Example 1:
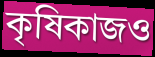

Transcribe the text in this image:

কৃষিকাজও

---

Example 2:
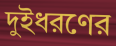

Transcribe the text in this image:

দুইধরণের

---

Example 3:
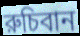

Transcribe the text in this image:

রুচিবান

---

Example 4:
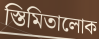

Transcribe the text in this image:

স্তিমিতালোক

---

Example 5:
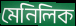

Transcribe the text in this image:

মেনিলিক